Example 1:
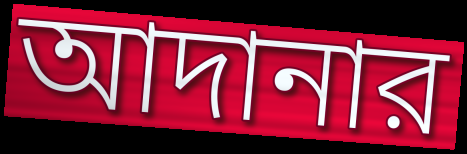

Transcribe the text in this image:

আদানার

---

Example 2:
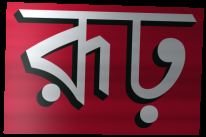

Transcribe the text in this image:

রূঢ়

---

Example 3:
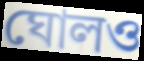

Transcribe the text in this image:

ঘোলও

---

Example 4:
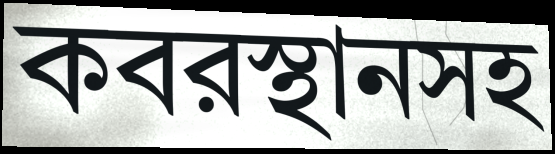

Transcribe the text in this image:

কবরস্থানসহ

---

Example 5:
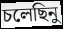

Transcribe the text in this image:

চলেছিনু